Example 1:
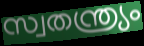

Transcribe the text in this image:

സ്വതന്ത്ര്യം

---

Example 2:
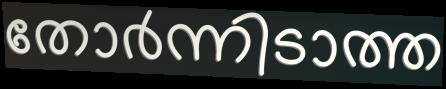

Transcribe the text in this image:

തോർന്നിടാത്ത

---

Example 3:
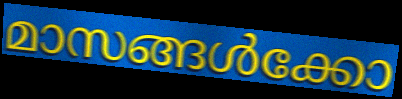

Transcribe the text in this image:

മാസങ്ങൾക്കോ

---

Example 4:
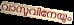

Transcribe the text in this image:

വാസുവിനേയും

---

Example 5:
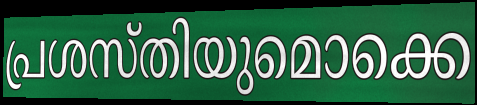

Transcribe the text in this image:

പ്രശസ്തിയുമൊക്കെ